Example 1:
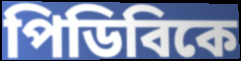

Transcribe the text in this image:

পিডিবিকে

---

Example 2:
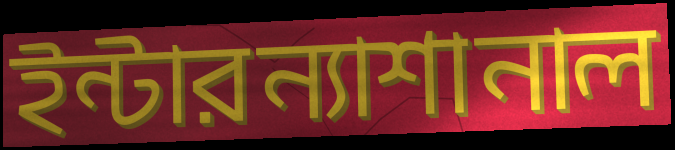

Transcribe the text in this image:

ইন্টারন্যাশানাল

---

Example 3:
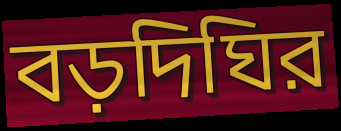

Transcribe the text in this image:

বড়দিঘির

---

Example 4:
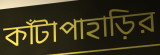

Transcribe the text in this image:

কাঁটাপাহাড়ির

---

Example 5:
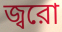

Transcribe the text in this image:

জ্বরো